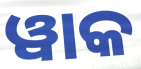
ୱାକ